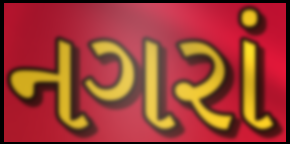
નગરાં